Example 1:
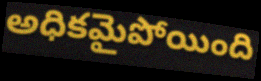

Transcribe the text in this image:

అధికమైపోయింది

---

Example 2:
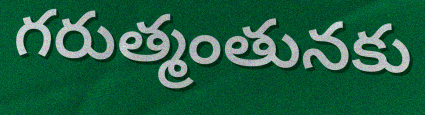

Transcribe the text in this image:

గరుత్మంతునకు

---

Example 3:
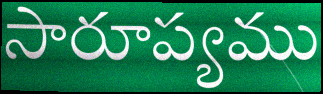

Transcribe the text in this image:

సారూప్యము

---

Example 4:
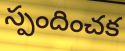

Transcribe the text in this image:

స్పందించక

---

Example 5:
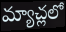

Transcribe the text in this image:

మ్యాచ్లలో